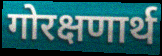
गोरक्षणार्थ